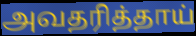
அவதரித்தாய்